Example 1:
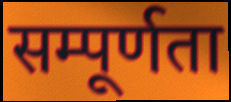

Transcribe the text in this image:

सम्पूर्णता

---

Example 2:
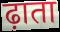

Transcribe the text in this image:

ढ़ाता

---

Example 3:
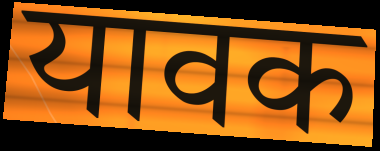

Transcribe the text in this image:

यावक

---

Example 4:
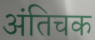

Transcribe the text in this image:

अंतिचक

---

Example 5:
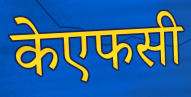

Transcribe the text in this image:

केएफसी